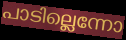
പാടില്ലെന്നോ